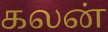
கலன்